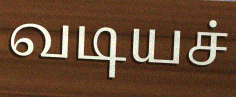
வடியச்